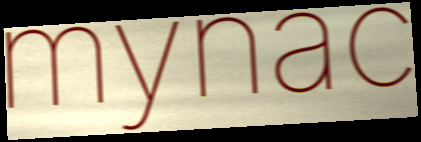
mynac